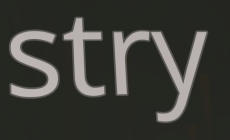
stry